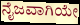
ನೈಜವಾಗಿಯೇ